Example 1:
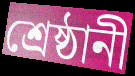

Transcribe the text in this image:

শ্রেষ্ঠানী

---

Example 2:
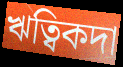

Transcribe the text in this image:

ঋত্বিকদা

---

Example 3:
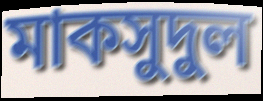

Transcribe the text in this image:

মাকসুদুল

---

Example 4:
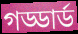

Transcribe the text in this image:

গড্ডার্ড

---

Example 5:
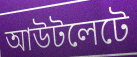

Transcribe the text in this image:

আউটলেটে